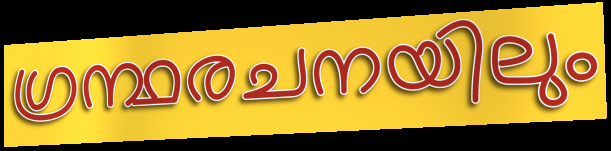
ഗ്രന്ഥരചനയിലും